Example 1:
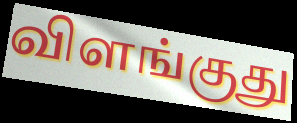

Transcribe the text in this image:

விளங்குது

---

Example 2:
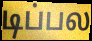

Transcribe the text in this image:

டிப்பல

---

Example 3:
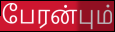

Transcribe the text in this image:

பேரன்பும்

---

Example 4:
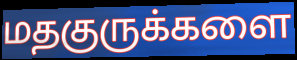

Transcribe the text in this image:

மதகுருக்களை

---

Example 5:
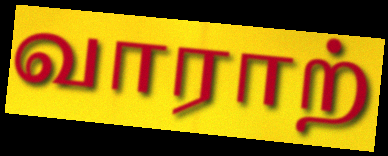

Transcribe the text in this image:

வாராற்